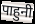
पाहुनी